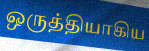
ஒருத்தியாகிய